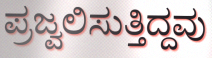
ಪ್ರಜ್ವಲಿಸುತ್ತಿದ್ದವು